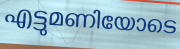
എട്ടുമണിയോടെ